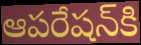
ఆపరేషన్‌కి